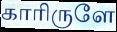
காரிருளே